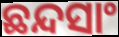
ଛନ୍ଦସାଂ